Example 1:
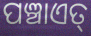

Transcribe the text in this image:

ପଞ୍ଚାଏତ୍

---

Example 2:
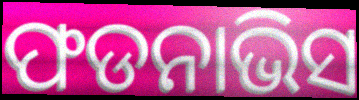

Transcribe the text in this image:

ଫଡନାଭିସ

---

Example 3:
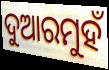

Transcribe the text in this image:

ଦୁଆରମୁହଁ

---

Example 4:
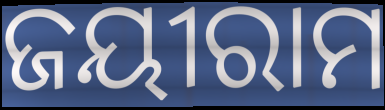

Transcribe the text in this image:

ଜୟୀରାମ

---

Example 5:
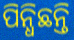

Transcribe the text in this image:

ପିନ୍ଧିଛନ୍ତି